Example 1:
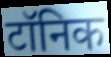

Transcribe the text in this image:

टॉनिक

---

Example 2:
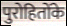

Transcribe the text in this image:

पुरोहितोंके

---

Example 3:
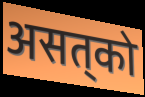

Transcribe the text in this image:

असत्‌को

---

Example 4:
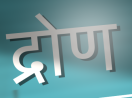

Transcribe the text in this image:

द्रोण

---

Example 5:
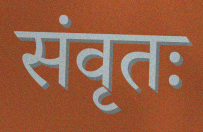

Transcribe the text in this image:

संवृतः